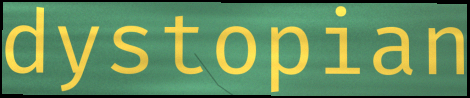
dystopian